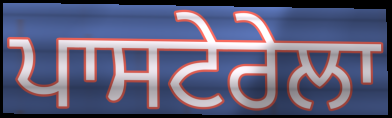
ਪਾਸਟੇਰੇਲਾ